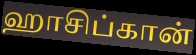
ஹாசிப்கான்